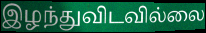
இழந்துவிடவில்லை